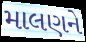
માલણને